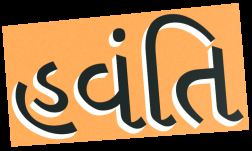
હવંતિ